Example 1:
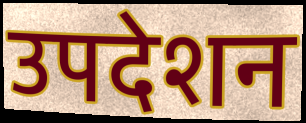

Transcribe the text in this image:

उपदेशन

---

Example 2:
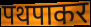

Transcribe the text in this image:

पथपाकर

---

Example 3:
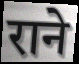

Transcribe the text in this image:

राने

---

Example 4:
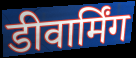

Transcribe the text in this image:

डीवार्मिंग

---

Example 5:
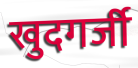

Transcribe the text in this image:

खुदगर्जी